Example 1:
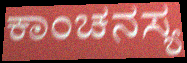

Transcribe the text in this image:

ಕಾಂಚನಸ್ಯ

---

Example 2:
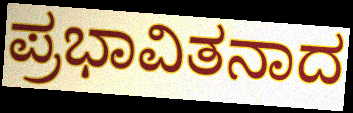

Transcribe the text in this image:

ಪ್ರಭಾವಿತನಾದ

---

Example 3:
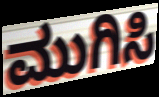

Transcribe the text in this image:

ಮುಗಿಸಿ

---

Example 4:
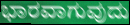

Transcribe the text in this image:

ಭಾರವಾಗುವುದು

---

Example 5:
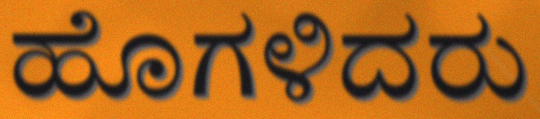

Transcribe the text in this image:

ಹೊಗಳಿದರು